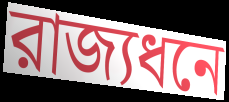
রাজ্যধনে